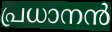
പ്രധാനൻ